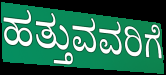
ಹತ್ತುವವರಿಗೆ